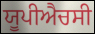
ਯੂਪੀਐਚਸੀ